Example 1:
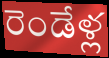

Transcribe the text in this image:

రెండేళ్ల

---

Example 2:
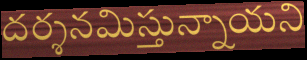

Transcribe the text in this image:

దర్శనమిస్తున్నాయని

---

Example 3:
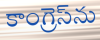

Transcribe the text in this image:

కాంగ్రెస్‌ను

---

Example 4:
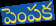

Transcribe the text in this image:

పెంపక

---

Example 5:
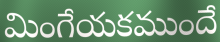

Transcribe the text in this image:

మింగేయకముందే